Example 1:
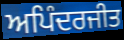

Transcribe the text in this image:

ਅਪਿੰਦਰਜੀਤ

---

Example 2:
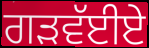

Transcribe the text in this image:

ਗੜਵੱਈਏ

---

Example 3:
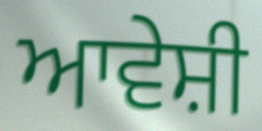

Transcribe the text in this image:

ਆਵੇਸ਼ੀ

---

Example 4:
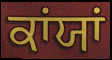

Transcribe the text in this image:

ਕਾਂਯਾਂ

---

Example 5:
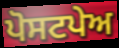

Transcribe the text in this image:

ਪੋਸਟਪੇਅ